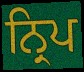
ਨ੍ਰਿਪ